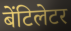
बेंटिलेटर